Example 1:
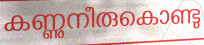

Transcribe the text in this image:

കണ്ണുനീരുകൊണ്ടു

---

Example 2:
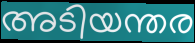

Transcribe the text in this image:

അടിയന്തര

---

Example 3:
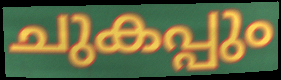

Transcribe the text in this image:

ചുകപ്പും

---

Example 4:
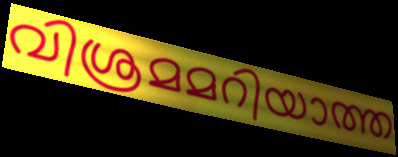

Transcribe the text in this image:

വിശ്രമമറിയാത്ത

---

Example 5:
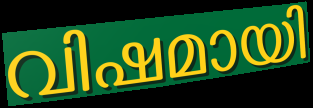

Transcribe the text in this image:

വിഷമായി